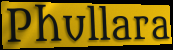
Phullara